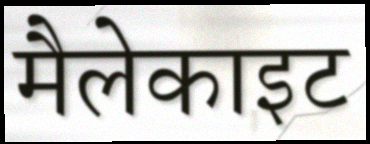
मैलेकाइट